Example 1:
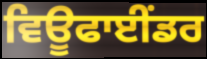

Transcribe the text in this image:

ਵਿਊਫਾਈਂਡਰ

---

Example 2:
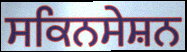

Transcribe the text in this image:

ਸਕਿਨਸੇਸ਼ਨ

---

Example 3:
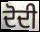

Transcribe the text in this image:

ਦੋਦੀ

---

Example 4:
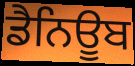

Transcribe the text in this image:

ਡੈਨਿਊਬ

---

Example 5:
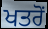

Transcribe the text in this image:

ਖਤਰੋਂ